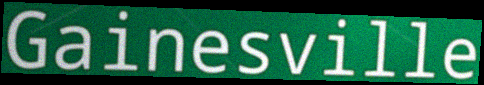
Gainesville